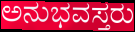
ಅನುಭವಸ್ತರು